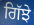
ਗਿੱਝੇ